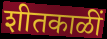
शीतकाळीं